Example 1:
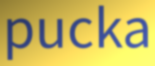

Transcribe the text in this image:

pucka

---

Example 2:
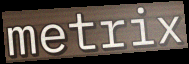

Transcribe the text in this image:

metrix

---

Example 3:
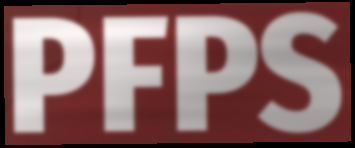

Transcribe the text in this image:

PFPS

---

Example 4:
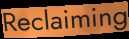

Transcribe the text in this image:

Reclaiming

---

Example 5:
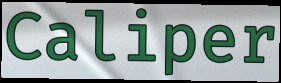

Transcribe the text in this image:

Caliper